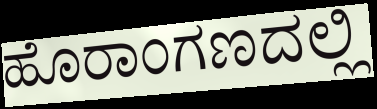
ಹೊರಾಂಗಣದಲ್ಲಿ